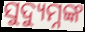
ସୁଦ୍ୟୁମ୍ନଙ୍କ